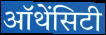
ऑथेंसिटी